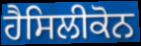
ਹੈਸਿਲੀਕੋਨ